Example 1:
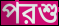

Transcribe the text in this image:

পরশু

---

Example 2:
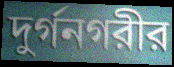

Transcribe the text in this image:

দুর্গনগরীর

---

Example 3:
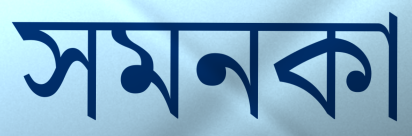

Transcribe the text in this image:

সমনকা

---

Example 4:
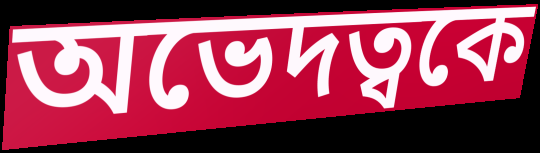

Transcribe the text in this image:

অভেদত্বকে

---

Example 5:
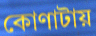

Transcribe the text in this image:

কোণাটায়